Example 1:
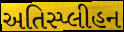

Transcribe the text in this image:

અતિસ્પ્લીહન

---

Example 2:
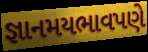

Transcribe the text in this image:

જ્ઞાનમયભાવપણે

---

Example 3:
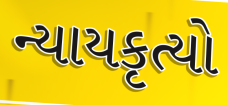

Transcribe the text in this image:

ન્યાયકૃત્યો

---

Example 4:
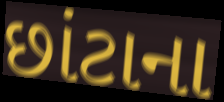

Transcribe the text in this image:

છાંટાના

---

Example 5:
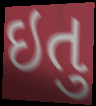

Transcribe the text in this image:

ઇતુ